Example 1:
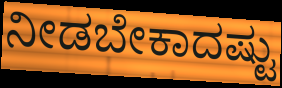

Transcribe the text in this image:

ನೀಡಬೇಕಾದಷ್ಟು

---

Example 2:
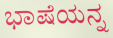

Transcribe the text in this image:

ಭಾಷೆಯನ್ನ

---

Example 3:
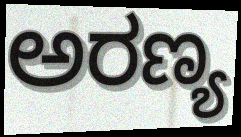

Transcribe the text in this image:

ಅರಣ್ಯ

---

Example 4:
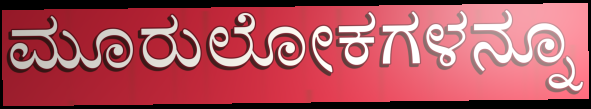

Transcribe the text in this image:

ಮೂರುಲೋಕಗಳನ್ನೂ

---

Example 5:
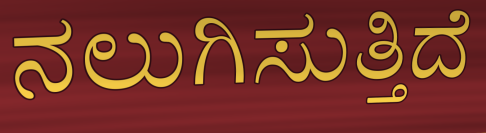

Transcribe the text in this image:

ನಲುಗಿಸುತ್ತಿದೆ